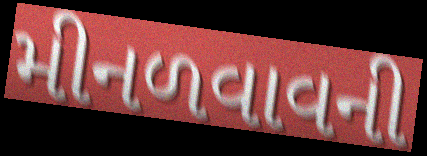
મીનળવાવની